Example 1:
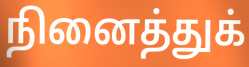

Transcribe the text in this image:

நினைத்துக்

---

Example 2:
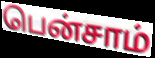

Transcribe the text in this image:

பென்சாம்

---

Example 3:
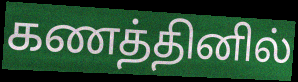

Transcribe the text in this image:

கணத்தினில்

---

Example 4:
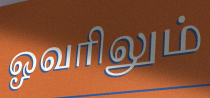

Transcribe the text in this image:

ஓவரிலும்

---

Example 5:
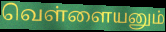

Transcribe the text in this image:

வெள்ளையனும்